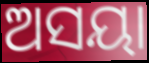
ଅସୟା